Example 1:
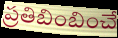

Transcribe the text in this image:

ప్రతిబింబించే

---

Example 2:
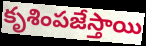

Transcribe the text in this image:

కృశింపజేస్తాయి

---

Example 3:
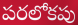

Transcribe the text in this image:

పరలోకపు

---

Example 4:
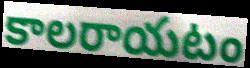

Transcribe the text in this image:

కాలరాయటం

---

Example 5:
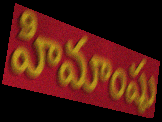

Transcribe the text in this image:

హిమాంషు